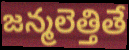
జన్మలెత్తితే